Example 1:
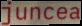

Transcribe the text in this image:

juncea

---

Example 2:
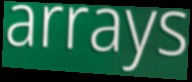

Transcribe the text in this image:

arrays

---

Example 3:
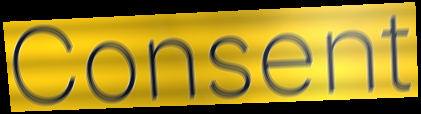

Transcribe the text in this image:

Consent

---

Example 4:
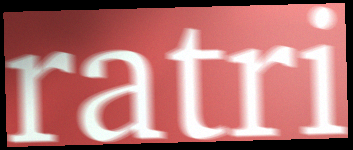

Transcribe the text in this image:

ratri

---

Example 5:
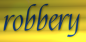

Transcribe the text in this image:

robbery